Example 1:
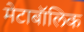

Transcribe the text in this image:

मेटाबॉलिक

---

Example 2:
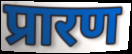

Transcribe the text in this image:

प्रारण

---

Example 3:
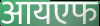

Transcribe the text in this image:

आयएफ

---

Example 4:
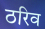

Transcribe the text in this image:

ठरिव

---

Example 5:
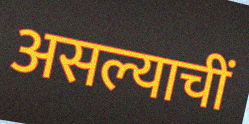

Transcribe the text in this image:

असल्याचीं